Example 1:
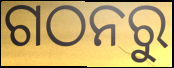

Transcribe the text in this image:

ଗଠନରୁ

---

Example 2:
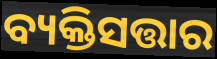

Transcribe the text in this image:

ବ୍ୟକ୍ତିସତ୍ତାର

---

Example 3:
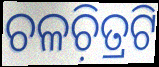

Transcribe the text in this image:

ଚଳଚ଼ିତ୍ରଟି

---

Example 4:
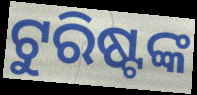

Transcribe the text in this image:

ଟୁରିଷ୍ଟଙ୍କ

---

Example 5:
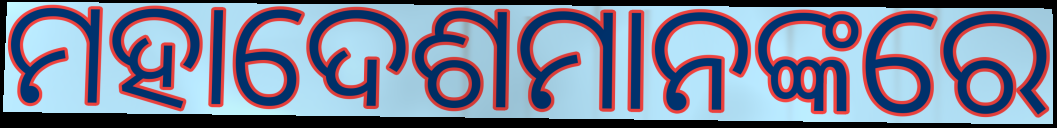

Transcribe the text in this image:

ମହାଦେଶମାନଙ୍କରେ